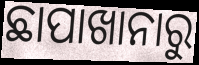
ଛାପାଖାନାରୁ